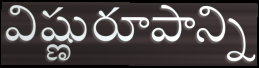
విష్ణురూపాన్ని